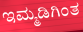
ಇಮ್ಮಡಿಗಿಂತ